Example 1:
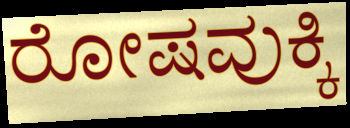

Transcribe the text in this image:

ರೋಷವುಕ್ಕಿ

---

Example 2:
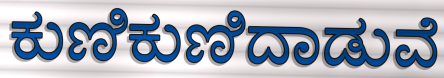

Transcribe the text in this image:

ಕುಣಿಕುಣಿದಾಡುವೆ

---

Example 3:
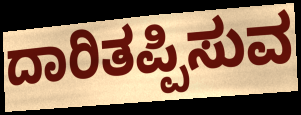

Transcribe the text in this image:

ದಾರಿತಪ್ಪಿಸುವ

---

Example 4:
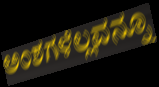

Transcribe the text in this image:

ಅಂಶಗಳೆಲ್ಲವನ್ನೂ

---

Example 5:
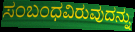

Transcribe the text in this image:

ಸಂಬಂಧವಿರುವುದನ್ನು